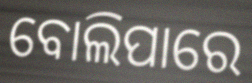
ବୋଲିପାରେ